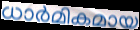
ധാർമികമായ